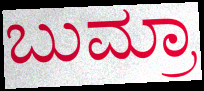
ಬುಮ್ರಾ